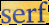
serf